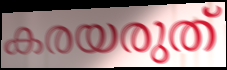
കരയരുത്